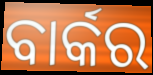
ବାର୍କର